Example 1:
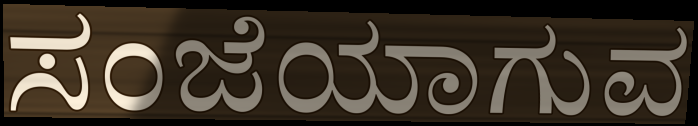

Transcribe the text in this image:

ಸಂಜೆಯಾಗುವ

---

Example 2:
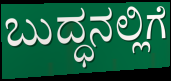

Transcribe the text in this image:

ಬುದ್ಧನಲ್ಲಿಗೆ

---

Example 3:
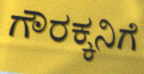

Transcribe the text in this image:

ಗೌರಕ್ಕನಿಗೆ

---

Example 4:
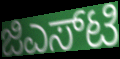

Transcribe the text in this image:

ಜಿಎಸ್‌ಟಿ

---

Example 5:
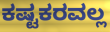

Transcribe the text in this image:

ಕಷ್ಟಕರವಲ್ಲ